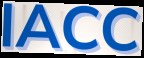
IACC